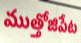
ముత్తోజిపేట